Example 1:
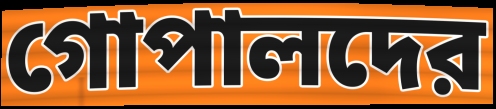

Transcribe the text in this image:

গোপালদের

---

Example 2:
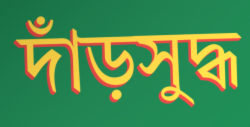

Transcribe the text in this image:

দাঁড়সুদ্ধ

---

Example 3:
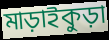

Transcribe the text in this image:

মাড়াইকুড়া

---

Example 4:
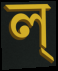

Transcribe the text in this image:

ল্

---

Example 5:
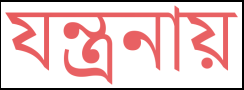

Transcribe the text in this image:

যন্ত্রনায়